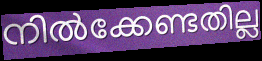
നിൽക്കേണ്ടതില്ല